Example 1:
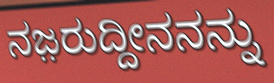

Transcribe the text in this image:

ನಜ಼ರುದ್ದೀನನನ್ನು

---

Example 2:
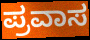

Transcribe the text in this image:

ಪ್ರವಾಸ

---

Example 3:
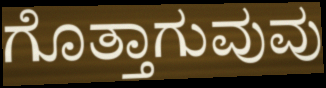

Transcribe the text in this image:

ಗೊತ್ತಾಗುವುವು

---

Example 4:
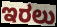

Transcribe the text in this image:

ಇರಲು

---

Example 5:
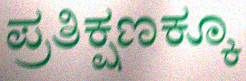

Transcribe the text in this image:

ಪ್ರತಿಕ್ಷಣಕ್ಕೂ